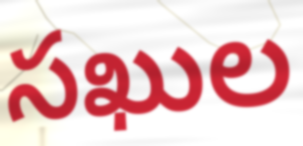
సఖుల